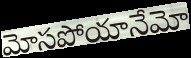
మోసపోయానేమో